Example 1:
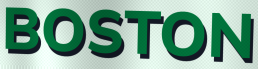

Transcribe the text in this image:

BOSTON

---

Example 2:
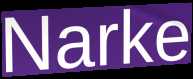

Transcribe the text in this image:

Narke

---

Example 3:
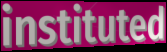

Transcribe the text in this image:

instituted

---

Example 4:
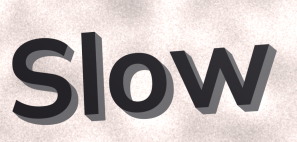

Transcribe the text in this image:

Slow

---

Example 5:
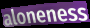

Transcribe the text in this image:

aloneness